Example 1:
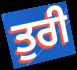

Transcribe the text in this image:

ਤੁਰੀ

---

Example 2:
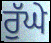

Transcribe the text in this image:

ਰੁੱਘੇ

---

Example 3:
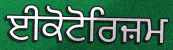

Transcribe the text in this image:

ਈਕੋਟੋਰਿਜ਼ਮ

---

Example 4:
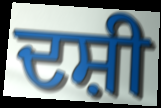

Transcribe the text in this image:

ਦਸ਼ੀ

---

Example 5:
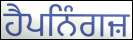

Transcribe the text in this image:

ਹੈਪਨਿੰਗਜ਼